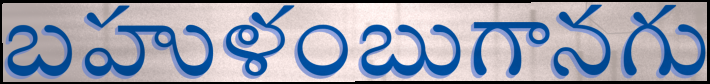
బహుళంబుగానగు